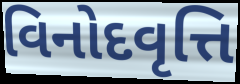
વિનોદવૃત્તિ